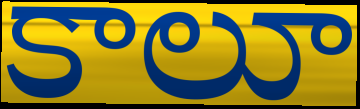
కాలూ